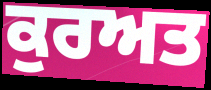
ਕੁਰਅਤ